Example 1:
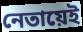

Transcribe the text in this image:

নেতায়েই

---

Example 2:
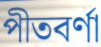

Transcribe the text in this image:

পীতবৰ্ণা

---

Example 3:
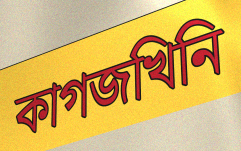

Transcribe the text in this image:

কাগজখিনি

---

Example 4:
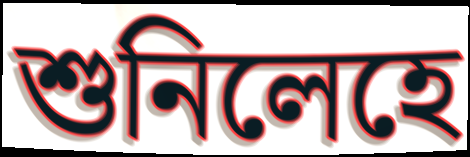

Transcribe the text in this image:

শুনিলেহে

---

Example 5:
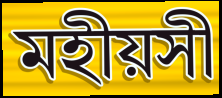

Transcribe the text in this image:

মহীয়সী